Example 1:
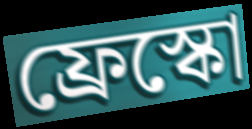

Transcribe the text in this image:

ফ্রেস্কো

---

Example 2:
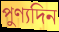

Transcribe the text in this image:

পুণ্যদিন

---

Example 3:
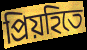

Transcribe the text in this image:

প্রিয়হিতে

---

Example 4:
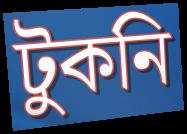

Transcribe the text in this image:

টুকনি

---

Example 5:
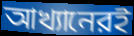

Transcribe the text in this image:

আখ্যানেরই